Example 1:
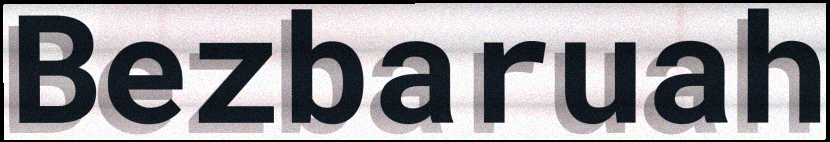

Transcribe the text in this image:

Bezbaruah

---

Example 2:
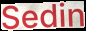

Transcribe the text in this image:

Sedin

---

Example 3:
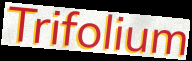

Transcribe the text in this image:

Trifolium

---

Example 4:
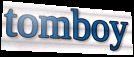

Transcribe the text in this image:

tomboy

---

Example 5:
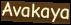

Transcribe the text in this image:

Avakaya